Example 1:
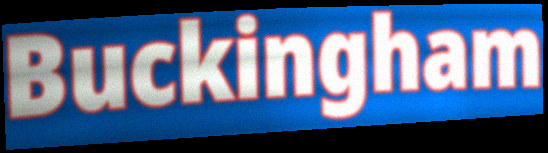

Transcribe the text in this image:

Buckingham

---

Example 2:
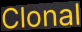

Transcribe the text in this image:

Clonal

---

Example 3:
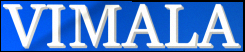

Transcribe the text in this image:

VIMALA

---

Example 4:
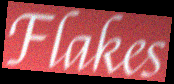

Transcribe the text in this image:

Flakes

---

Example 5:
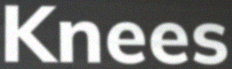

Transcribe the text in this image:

Knees